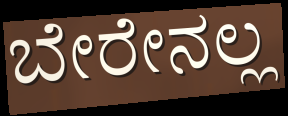
ಬೇರೇನಲ್ಲ